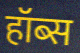
हॉब्स